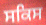
ਸਕਿਸ